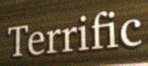
Terrific